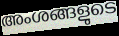
അംശങ്ങളുടെ